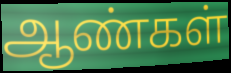
ஆண்கள்